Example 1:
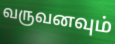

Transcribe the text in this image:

வருவனவும்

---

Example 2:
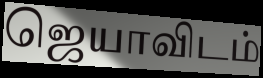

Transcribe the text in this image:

ஜெயாவிடம்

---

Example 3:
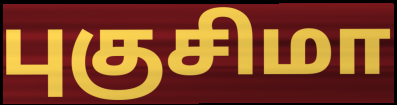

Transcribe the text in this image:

புகுசிமா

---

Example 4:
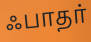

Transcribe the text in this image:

ஃபாதர்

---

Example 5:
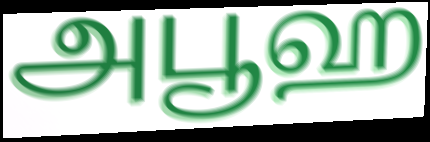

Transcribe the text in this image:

அபூஹ